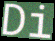
Di